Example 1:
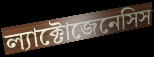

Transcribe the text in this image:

ল্যাক্টোজেনেসিস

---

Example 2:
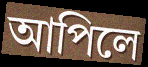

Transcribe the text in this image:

আপিলে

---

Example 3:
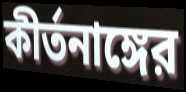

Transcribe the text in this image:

কীর্তনাঙ্গের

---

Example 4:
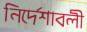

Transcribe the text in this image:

নির্দেশাবলী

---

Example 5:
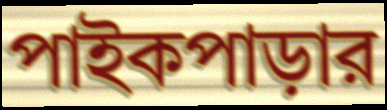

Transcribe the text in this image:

পাইকপাড়ার